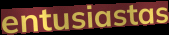
entusiastas